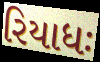
રિયાધઃ